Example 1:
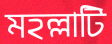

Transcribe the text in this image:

মহল্লাটি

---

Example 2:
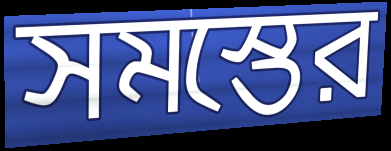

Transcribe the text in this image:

সমস্তের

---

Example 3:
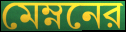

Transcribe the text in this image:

মেম্ননের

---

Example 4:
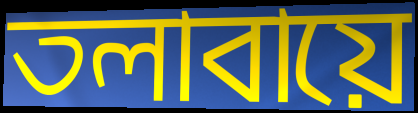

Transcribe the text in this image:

তলাবায়ে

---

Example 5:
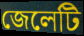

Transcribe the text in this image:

জেলেটি